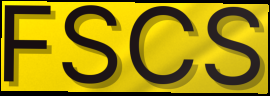
FSCS